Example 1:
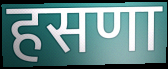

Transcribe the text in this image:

हसणा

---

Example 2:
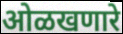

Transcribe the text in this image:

ओळखणारे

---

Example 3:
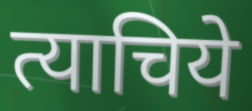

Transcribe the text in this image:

त्याचिये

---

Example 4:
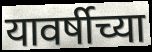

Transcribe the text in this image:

यावर्षीच्या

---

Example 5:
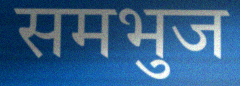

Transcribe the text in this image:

समभुज